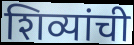
शिव्यांची